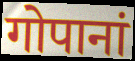
गोपानां